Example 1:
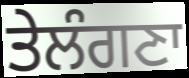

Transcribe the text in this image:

ਤੇਲੰਗਣਾ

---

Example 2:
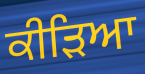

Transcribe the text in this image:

ਕੀੜਿਆ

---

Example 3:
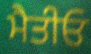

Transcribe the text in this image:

ਮੈਤੀਓ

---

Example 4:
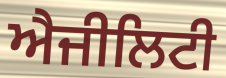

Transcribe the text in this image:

ਐਜੀਲਿਟੀ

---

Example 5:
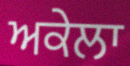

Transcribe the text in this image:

ਅਕੇਲਾ